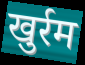
खुर्रम